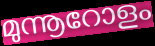
മുന്നൂറോളം